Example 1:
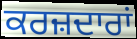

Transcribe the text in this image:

ਕਰਜ਼ਦਾਰਾਂ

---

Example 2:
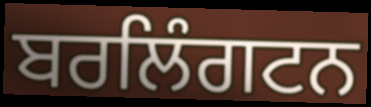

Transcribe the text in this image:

ਬਰਲਿੰਗਟਨ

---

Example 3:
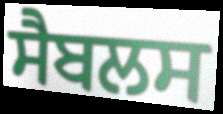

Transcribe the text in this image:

ਸੈਬਲਸ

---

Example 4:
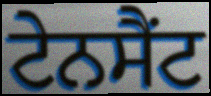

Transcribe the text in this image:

ਟੇਨਸੈਂਟ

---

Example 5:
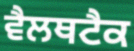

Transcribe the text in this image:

ਵੈਲਥਟੈਕ